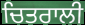
ਚਿਤਰਾਲੀ